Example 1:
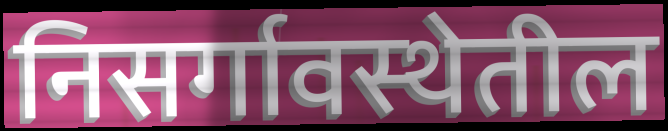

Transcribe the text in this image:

निसर्गावस्थेतील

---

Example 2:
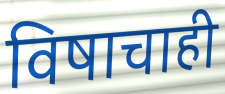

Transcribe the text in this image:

विषाचाही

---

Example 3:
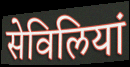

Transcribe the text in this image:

सेविलियां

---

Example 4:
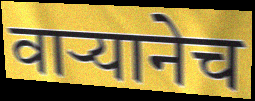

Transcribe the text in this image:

वाऱ्यानेच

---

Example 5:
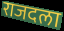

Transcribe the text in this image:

राजदला